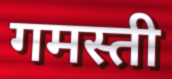
गमस्ती